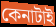
কেনাটাই